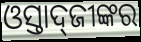
ଓସ୍ତାଦ୍‌ଜୀଙ୍କର